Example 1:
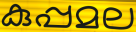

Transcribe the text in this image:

കുപ്പമല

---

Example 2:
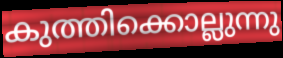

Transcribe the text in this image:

കുത്തിക്കൊല്ലുന്നു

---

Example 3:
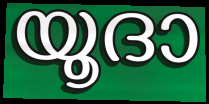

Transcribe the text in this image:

യൂദാ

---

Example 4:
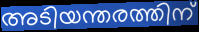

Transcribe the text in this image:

അടിയന്തരത്തിന്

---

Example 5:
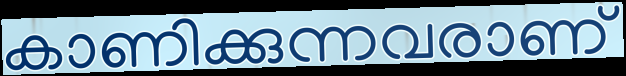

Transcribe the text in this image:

കാണിക്കുന്നവരാണ്